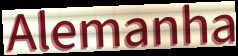
Alemanha